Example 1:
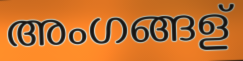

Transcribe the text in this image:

അംഗങ്ങള്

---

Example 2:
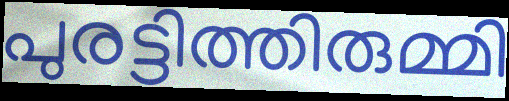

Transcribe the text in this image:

പുരട്ടിത്തിരുമ്മി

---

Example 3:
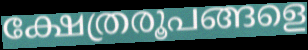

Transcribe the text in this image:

ക്ഷേത്രരൂപങ്ങളെ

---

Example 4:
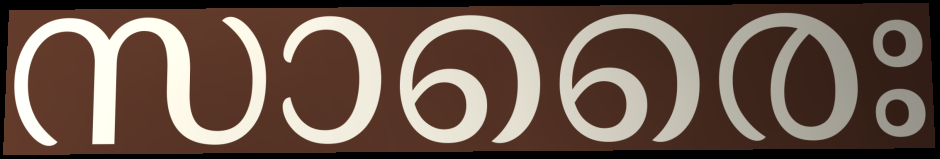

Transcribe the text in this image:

സാരൈഃ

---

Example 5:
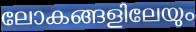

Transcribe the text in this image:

ലോകങ്ങളിലേയും